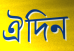
ঐদিন